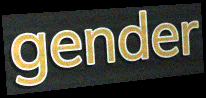
gender